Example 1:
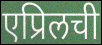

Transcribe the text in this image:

एप्रिलची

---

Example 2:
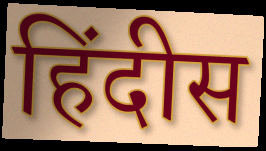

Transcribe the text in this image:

हिंदीस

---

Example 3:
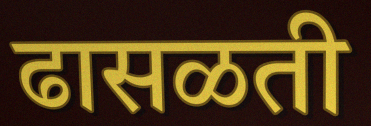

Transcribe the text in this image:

ढासळती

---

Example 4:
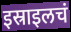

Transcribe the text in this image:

इस्राइलचं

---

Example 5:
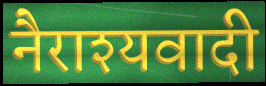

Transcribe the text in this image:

नैराश्यवादी